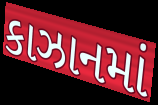
કાઝાનમાં